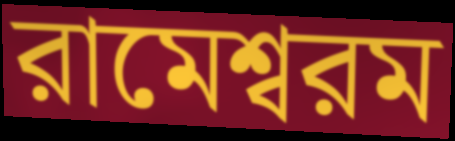
রামেশ্বরম